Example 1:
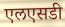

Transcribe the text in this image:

एलएसडी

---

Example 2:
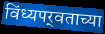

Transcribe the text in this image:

विंध्यपर्वताच्या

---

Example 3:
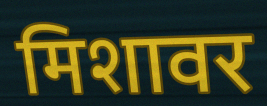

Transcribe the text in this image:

मिशावर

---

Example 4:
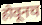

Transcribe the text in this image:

होवूनच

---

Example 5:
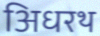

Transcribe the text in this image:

अिधरथ